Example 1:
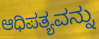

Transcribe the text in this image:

ಆಧಿಪತ್ಯವನ್ನು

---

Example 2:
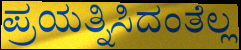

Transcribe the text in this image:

ಪ್ರಯತ್ನಿಸಿದಂತೆಲ್ಲ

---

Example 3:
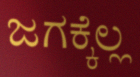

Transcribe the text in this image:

ಜಗಕ್ಕೆಲ್ಲ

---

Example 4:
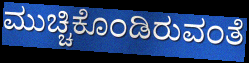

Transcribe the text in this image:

ಮುಚ್ಚಿಕೊಂಡಿರುವಂತೆ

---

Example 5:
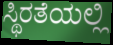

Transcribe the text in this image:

ಸ್ಥಿರತೆಯಲ್ಲಿ